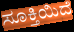
ಸೂಕ್ತಿಯಿದೆ